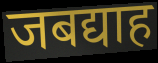
जबद्याह